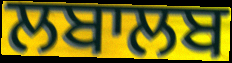
ਲਬਾਲਬ